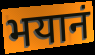
भयानं